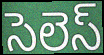
సెలెస్